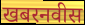
खबरनवीस